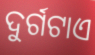
ଦୁର୍ଗଟାଏ